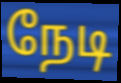
நேடி